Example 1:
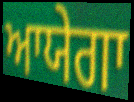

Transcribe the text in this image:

ਆਯੇਗਾ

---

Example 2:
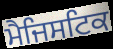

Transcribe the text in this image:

ਮੈਜਿਸਟਿਕ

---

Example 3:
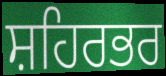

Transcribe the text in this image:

ਸ਼ਹਿਰਭਰ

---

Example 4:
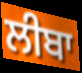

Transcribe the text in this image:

ਲੀਬਾ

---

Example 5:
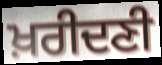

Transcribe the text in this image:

ਖ਼ਰੀਦਣੀ